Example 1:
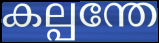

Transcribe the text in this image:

കല്പന്തേ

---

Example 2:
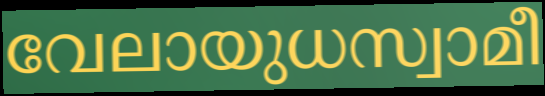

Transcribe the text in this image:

വേലായുധസ്വാമീ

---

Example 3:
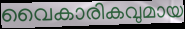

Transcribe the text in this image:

വൈകാരികവുമായ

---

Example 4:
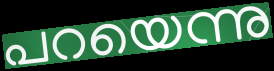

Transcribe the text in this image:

പറയെന്നു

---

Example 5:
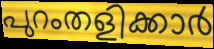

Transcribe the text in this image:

പുറംതളിക്കാർ